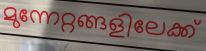
മുന്നേറ്റങ്ങളിലേക്ക്